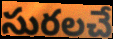
సురలచే